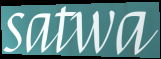
satwa